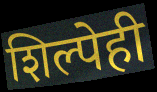
शिल्पेही